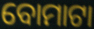
ବୋମାଟା